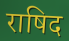
राषिद